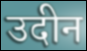
उदीन